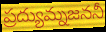
ప్రద్యుమ్నజననీ